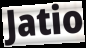
Jatio